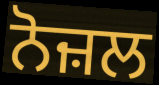
ਨੋਜ਼ਲ